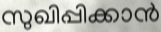
സുഖിപ്പിക്കാൻ